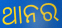
ଥାନର